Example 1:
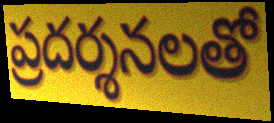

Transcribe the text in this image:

ప్రదర్శనలతో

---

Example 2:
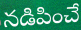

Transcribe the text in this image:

నడిపించే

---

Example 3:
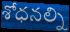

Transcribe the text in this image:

శోధనల్ని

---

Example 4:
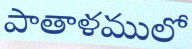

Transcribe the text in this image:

పాతాళములో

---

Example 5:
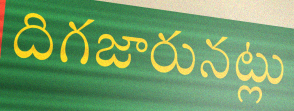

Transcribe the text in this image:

దిగజారునట్లు